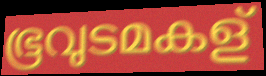
ഭൂവുടമകള്